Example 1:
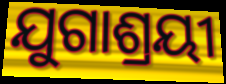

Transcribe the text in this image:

ଯୁଗାଶ୍ରୟୀ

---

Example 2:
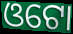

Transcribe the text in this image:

ଓଟୋ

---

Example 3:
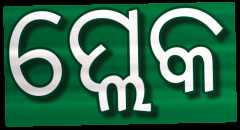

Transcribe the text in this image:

ପ୍ଲେକ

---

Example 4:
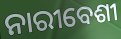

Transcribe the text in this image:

ନାରୀବେଶୀ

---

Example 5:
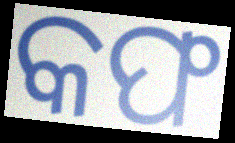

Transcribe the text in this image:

କଫ